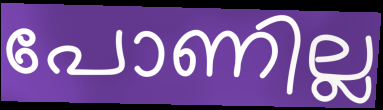
പോണില്ല